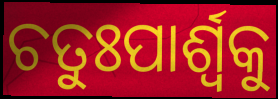
ଚତୁଃପାର୍ଶ୍ୱକୁ